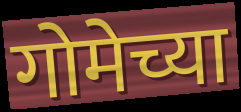
गोमेच्या